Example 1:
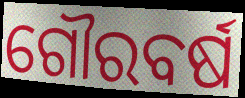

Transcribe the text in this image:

ଗୌରବର୍ଷ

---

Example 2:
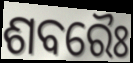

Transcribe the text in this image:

ଶବରୈଃ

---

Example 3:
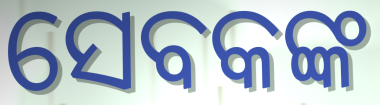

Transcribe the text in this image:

ସେବକଙ୍କ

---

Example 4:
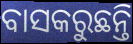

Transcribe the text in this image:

ବାସକରୁଛନ୍ତି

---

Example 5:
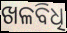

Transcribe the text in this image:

ଖଳବିଧି